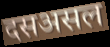
दसअसल